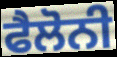
ਫੈਲੋਨੀ